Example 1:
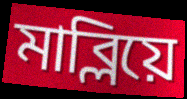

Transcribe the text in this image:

মাব্লিয়ে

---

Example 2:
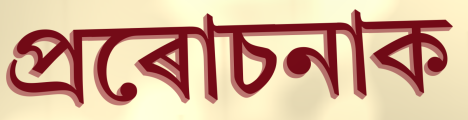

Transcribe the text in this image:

প্ৰৰোচনাক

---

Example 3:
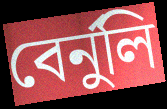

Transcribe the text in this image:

বেৰ্নুলি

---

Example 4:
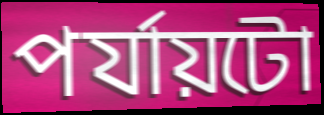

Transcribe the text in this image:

পৰ্যায়টো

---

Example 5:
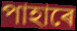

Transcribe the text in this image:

পাহাৰে